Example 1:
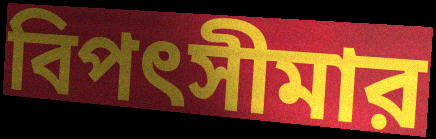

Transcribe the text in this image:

বিপৎসীমার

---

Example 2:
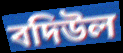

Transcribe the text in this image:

বদিউল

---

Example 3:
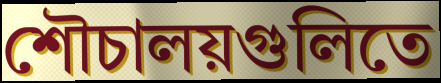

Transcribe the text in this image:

শৌচালয়গুলিতে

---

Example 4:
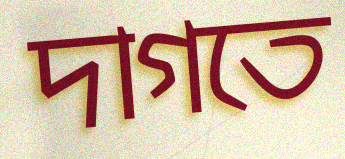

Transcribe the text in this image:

দাগতে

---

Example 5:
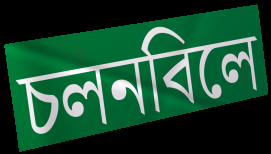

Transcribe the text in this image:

চলনবিলে